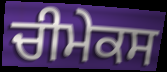
ਚੀਮੇਕਸ